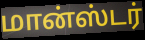
மான்ஸ்டர்